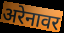
अरेनावर